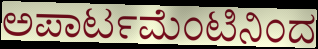
ಅಪಾರ್ಟಮೆಂಟಿನಿಂದ